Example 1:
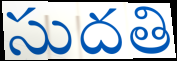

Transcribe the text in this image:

సుదతి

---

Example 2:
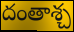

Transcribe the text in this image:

దంతాశ్చ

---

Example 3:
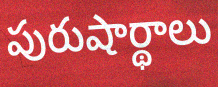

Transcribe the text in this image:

పురుషార్థాలు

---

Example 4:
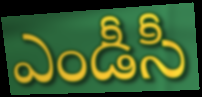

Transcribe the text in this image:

ఎండీసీ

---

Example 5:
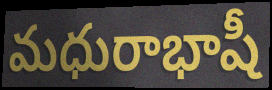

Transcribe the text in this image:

మధురాభాషీ